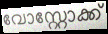
വോസ്റ്റോക്ക്